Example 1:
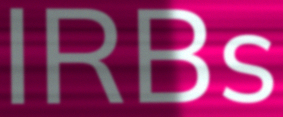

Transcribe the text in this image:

IRBs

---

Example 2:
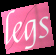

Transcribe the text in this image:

legs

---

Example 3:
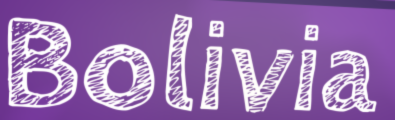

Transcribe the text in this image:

Bolivia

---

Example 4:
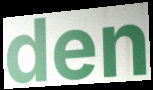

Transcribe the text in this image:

den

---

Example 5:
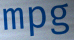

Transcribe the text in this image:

mpg